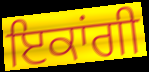
ਇਕਾਂਗੀ